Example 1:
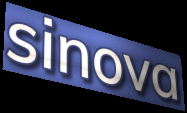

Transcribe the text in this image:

sinova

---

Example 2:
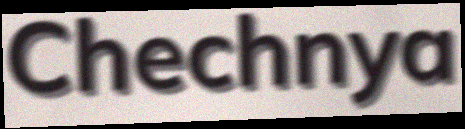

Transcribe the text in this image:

Chechnya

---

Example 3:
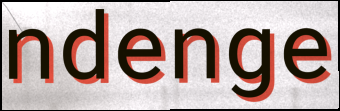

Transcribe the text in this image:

ndenge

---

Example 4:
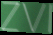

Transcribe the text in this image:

ZVI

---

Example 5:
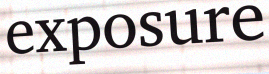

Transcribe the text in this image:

exposure